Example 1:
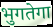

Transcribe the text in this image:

भुगतेगा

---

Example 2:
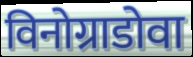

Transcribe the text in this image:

विनोग्राडोवा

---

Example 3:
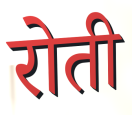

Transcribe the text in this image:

रोती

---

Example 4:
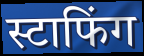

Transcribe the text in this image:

स्टाफिंग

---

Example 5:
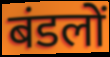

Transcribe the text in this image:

बंडलों